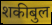
शकीबुल